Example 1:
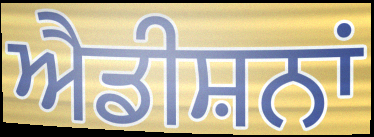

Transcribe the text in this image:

ਐਡੀਸ਼ਨਾਂ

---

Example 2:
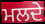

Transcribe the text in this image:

ਮਲਦੇ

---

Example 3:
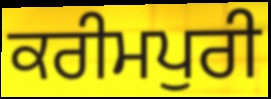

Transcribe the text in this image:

ਕਰੀਮਪੁਰੀ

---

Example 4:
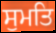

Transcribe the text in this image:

ਸੁਮਤਿ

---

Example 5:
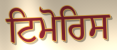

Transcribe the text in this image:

ਟਿਮੋਰਿਸ